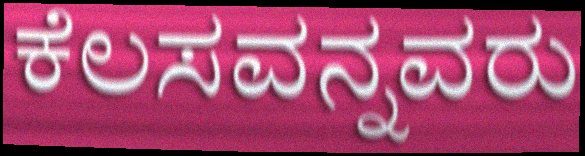
ಕೆಲಸವನ್ನವರು